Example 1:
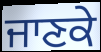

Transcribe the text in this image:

ਜਾਣਕੇ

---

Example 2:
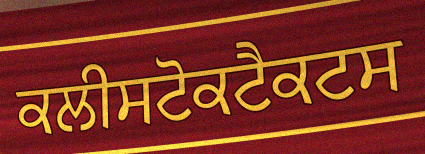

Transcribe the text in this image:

ਕਲੀਸਟੋਕਟੈਕਟਸ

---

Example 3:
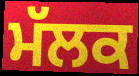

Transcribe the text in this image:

ਮੱਲਕ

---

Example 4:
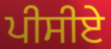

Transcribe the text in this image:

ਪੀਸੀਏ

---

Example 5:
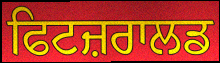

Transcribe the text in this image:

ਫਿਟਜ਼ਰਾਲਡ